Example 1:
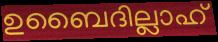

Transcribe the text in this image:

ഉബൈദില്ലാഹ്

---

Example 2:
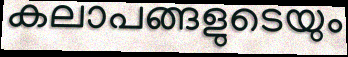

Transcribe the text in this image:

കലാപങ്ങളുടെയും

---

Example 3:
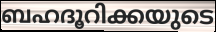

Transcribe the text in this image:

ബഹദൂറിക്കയുടെ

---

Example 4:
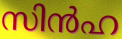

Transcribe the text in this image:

സിൻഹ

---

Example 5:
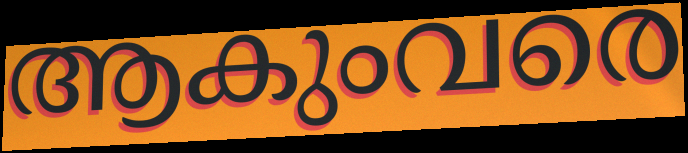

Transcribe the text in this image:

ആകുംവരെ